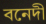
বনেদী